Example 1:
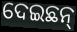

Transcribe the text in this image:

ଦେଇଛନ୍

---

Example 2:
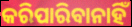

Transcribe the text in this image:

କରିପାରିବାନାହିଁ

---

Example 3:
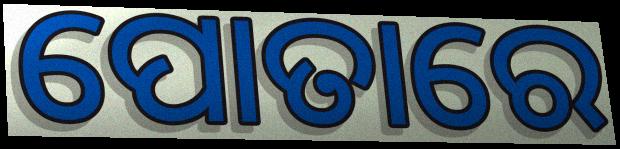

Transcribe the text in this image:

ପୋତାରେ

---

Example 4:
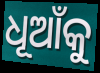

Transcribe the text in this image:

ଧୂଆଁକୁ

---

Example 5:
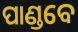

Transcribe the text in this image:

ପାଣ୍ଡବେ